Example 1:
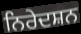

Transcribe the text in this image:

ਨਿਰੇਦਸ਼ਨ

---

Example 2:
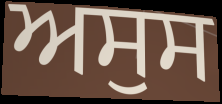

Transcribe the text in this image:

ਅਸੁਸ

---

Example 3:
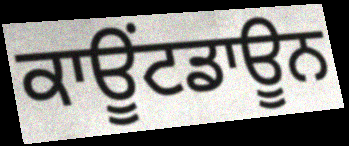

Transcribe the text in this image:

ਕਾਊਂਟਡਾਊਨ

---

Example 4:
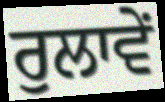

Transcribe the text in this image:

ਰੁਲਾਵੇਂ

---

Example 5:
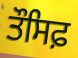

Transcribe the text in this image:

ਤੌਸਿਫ਼